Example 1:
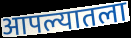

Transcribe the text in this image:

आपल्यातला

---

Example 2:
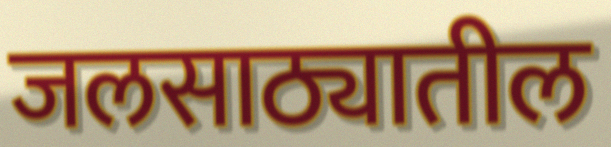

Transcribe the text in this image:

जलसाठ्यातील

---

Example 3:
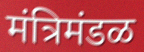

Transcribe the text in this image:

मंत्रिमंडळ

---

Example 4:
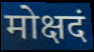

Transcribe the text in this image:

मोक्षदं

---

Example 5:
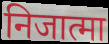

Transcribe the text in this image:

निजात्मा